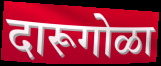
दारूगोळा